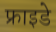
फ्राइडे